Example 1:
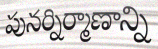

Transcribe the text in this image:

పునర్నిర్మాణాన్ని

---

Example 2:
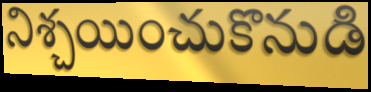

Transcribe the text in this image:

నిశ్చయించుకొనుడి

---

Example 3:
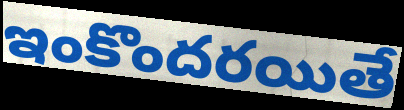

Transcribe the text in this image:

ఇంకొందరయితే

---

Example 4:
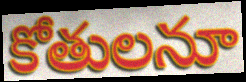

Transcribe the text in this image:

కోతులనూ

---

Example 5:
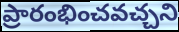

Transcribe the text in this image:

ప్రారంభించవచ్చని